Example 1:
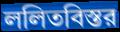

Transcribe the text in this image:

ললিতবিস্তর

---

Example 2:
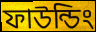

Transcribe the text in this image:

ফাউন্ডিং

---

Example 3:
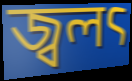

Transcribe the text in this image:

জ্বলৎ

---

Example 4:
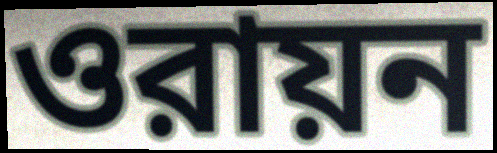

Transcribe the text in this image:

ওরায়ন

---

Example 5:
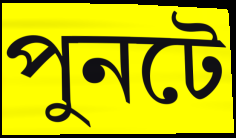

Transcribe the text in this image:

পুনটে